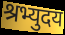
श्रभ्युदय